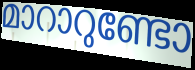
മാറാറുണ്ടോ